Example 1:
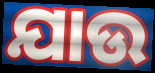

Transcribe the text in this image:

ଯାଉ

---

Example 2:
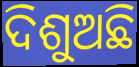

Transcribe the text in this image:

ଦିଶୁଅଛି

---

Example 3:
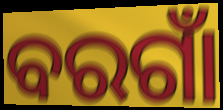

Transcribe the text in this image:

ବରଗାଁ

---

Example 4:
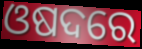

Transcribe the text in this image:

ଓଷଦରେ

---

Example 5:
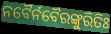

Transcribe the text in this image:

ନବୈର୍ନବୈରଙ୍କୁରିତିଃ